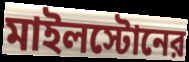
মাইলস্টোনের